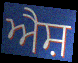
ਐਸ਼